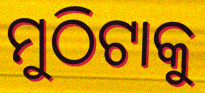
ମୁଠିଟାକୁ